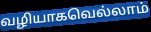
வழியாகவெல்லாம்